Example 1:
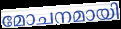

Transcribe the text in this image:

മോചനമായി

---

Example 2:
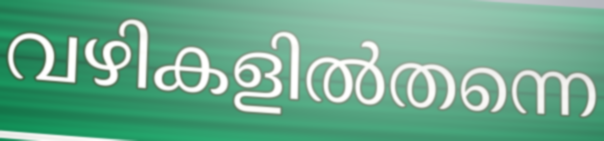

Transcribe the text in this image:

വഴികളിൽതന്നെ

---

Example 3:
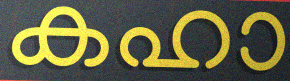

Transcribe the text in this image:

കഹാ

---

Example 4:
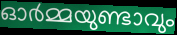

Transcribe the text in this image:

ഓർമ്മയുണ്ടാവും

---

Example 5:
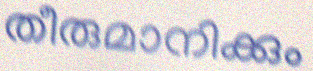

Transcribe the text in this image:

തീരുമാനിക്കും